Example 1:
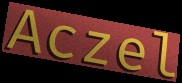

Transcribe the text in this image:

Aczel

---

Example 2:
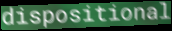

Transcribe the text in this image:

dispositional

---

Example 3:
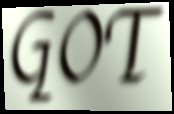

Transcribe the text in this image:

GOT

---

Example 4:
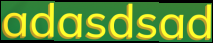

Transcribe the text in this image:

adasdsad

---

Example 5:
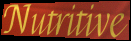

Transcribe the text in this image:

Nutritive